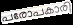
പരോപകാരി